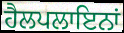
ਹੈਲਪਲਾਇਨਾਂ